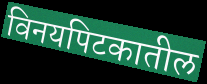
विनयपिटकातील